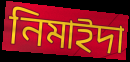
নিমাইদা